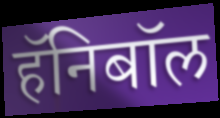
हॅनिबॉल